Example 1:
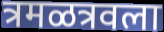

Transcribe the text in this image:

त्रमळत्रवला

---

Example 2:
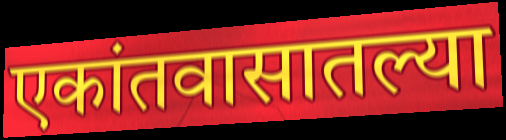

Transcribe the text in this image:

एकांतवासातल्या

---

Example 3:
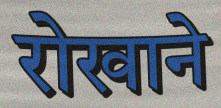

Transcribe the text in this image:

रोखाने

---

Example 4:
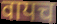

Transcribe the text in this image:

वायच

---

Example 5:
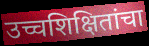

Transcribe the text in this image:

उच्चशिक्षितांचा